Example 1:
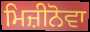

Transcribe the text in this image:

ਮਿਜ਼ੀਨੋਵਾ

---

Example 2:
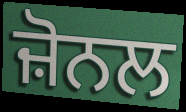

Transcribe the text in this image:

ਜ਼ੋਨਲ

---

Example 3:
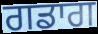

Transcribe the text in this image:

ਗਡਾਗ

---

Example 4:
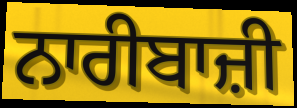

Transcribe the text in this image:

ਨਾਰੀਬਾਜ਼ੀ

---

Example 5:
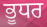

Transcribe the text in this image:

ਭੂਧਰ